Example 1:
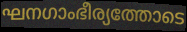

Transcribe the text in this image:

ഘനഗാംഭീര്യത്തോടെ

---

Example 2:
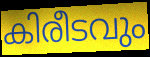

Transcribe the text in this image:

കിരീടവും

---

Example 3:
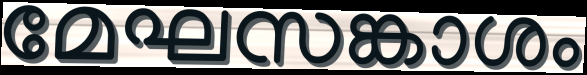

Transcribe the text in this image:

മേഘസങ്കാശം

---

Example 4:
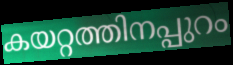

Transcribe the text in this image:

കയറ്റത്തിനപ്പുറം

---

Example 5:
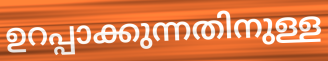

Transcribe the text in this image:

ഉറപ്പാക്കുന്നതിനുള്ള